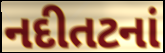
નદીતટનાં